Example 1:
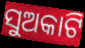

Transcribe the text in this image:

ସୁଅକାଟି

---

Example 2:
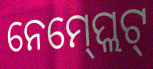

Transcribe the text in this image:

ନେମ୍‍ପ୍ଲେଟ୍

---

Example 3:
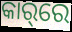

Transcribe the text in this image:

କାର୍‌ରେ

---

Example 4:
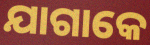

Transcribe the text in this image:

ଯାଗାକେ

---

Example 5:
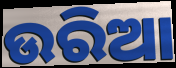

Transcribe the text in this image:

ଉରିଆ